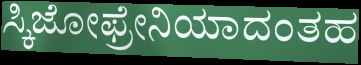
ಸ್ಕಿಜೋಫ್ರೇನಿಯಾದಂತಹ